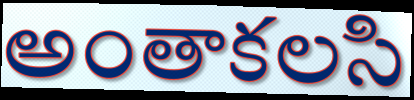
అంతాకలసి